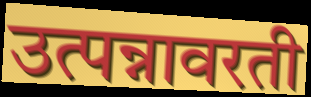
उत्पन्नावरती